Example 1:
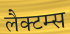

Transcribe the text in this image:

लैक्टम्स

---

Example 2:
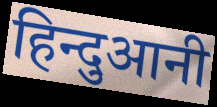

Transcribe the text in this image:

हिन्दुआनी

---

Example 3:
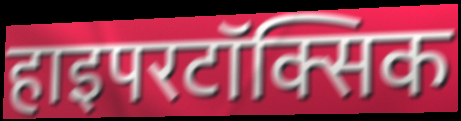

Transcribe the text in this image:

हाइपरटॉक्सिक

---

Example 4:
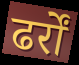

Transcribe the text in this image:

ढर्रों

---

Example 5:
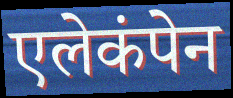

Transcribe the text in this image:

एलेकंपेन